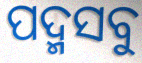
ପଦ୍ମସବୁ